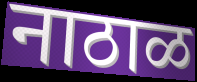
नाठाळ